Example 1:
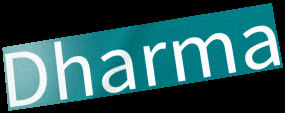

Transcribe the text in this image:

Dharma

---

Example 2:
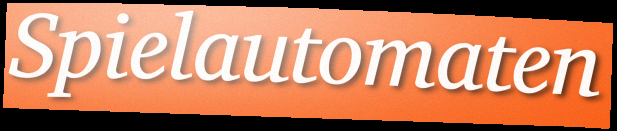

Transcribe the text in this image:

Spielautomaten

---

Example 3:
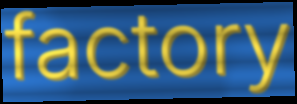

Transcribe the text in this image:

factory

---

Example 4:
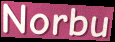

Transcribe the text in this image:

Norbu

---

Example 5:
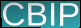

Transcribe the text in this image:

CBIP